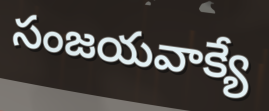
సంజయవాక్యే